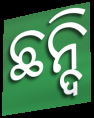
ଛନ୍ଦି